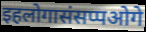
इहलोगासंसप्पओगे